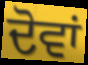
ਦੋਵਾਂ